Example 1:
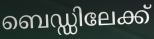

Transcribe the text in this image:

ബെഡ്ഡിലേക്ക്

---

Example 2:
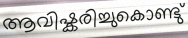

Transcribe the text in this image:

ആവിഷ്കരിച്ചുകൊണ്ടു്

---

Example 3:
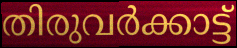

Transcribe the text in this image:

തിരുവർക്കാട്ട്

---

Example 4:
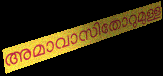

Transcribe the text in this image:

അമാവാസിതോറുമുള്ള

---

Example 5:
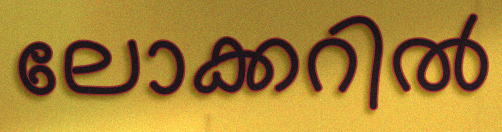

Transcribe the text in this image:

ലോക്കറിൽ